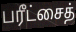
பரீட்சைத்